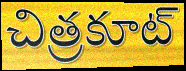
చిత్రకూట్